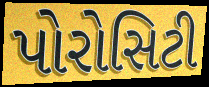
પોરોસિટી